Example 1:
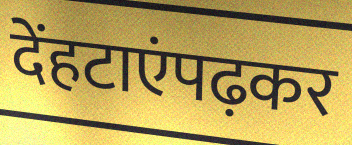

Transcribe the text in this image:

देंहटाएंपढ़कर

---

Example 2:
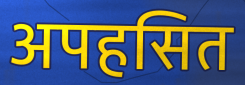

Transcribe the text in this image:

अपहसित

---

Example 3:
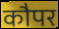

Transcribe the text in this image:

कौपर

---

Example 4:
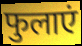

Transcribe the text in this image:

फुलाएं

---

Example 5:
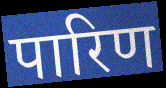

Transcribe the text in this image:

पारिण